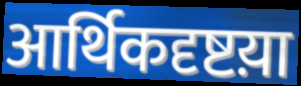
आर्थिकदृष्टय़ा